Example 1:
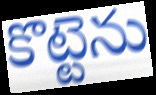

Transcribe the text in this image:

కొట్టెను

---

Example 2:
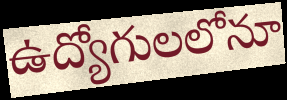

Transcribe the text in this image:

ఉద్యోగులలోనూ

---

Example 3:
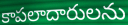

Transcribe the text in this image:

కాపలాదారులను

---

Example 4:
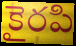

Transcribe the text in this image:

కైరపి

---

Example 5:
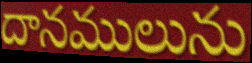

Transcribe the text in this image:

దానములును